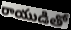
రాయుడితో